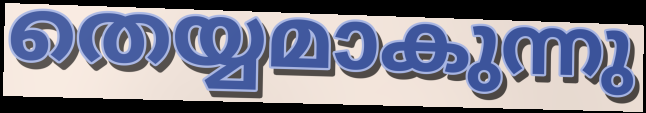
തെയ്യമാകുന്നു